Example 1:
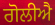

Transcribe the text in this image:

ਗੋਲੀਐ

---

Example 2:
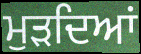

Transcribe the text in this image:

ਮੁੜਦਿਆਂ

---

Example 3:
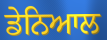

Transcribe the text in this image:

ਡੇਨਿਆਲ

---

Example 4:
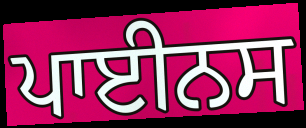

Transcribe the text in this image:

ਪਾਈਨਸ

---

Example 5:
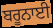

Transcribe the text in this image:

ਬਰੂਨਾਈ